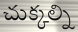
చుక్కల్ని